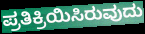
ಪ್ರತಿಕ್ರಿಯಿಸಿರುವುದು